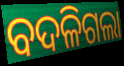
ବଦଳିଗଲା